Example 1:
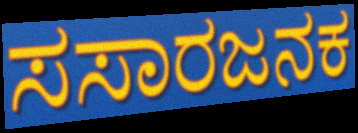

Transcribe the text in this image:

ಸಸಾರಜನಕ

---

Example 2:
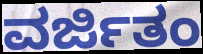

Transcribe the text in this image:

ವರ್ಜಿತಂ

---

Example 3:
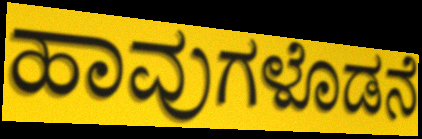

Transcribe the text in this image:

ಹಾವುಗಳೊಡನೆ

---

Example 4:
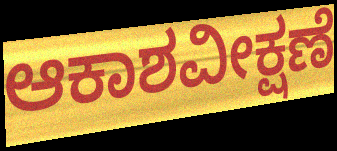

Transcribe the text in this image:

ಆಕಾಶವೀಕ್ಷಣೆ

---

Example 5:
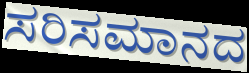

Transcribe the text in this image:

ಸರಿಸಮಾನದ